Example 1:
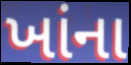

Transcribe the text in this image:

ખાંના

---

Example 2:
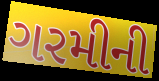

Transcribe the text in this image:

ગરમીની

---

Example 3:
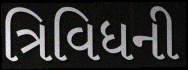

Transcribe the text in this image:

ત્રિવિધની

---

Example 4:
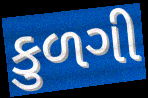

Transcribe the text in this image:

કુળગી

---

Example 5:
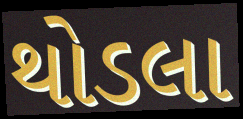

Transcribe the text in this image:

થોડલા